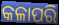
କଳାପରି